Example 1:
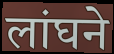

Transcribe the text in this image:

लांघने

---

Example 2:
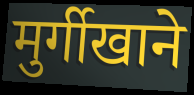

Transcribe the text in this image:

मुर्गीखाने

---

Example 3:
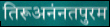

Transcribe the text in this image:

तिरूअनंनतपुरम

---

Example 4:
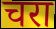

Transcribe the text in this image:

चरा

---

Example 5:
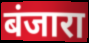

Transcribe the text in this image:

बंजारा